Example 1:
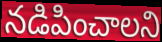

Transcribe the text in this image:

నడిపించాలని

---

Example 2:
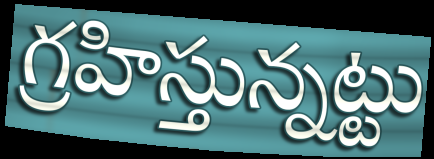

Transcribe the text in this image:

గ్రహిస్తున్నట్టు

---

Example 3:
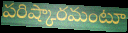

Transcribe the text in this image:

పరిష్కారమంటూ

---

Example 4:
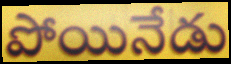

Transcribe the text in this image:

పోయినేడు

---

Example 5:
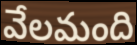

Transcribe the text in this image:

వేలమంది